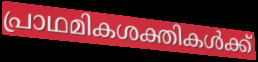
പ്രാഥമികശക്തികൾക്ക്